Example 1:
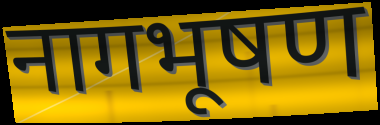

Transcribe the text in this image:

नागभूषण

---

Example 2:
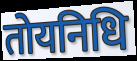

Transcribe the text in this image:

तोयनिधि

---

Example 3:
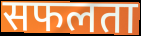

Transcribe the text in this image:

सफलता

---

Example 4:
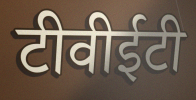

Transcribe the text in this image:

टीवीईटी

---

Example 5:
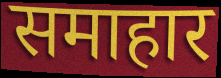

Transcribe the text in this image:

समाहार